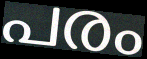
പരം